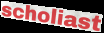
scholiast